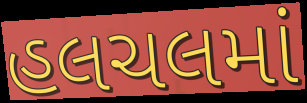
હલચલમાં